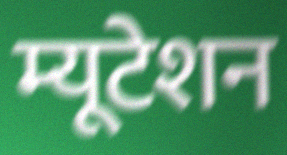
म्यूटेशन